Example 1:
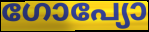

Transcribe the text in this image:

ഗോപ്യോ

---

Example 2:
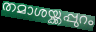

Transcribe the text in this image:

തമാശയ്ക്കപ്പുറം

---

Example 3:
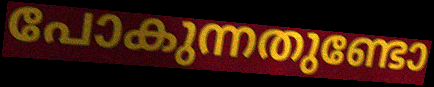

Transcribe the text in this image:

പോകുന്നതുണ്ടോ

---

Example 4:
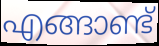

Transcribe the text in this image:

എങ്ങാണ്ട്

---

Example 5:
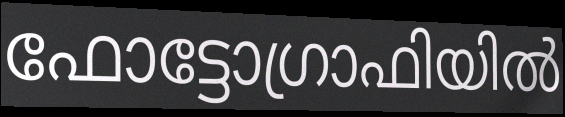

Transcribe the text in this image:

ഫോട്ടോഗ്രാഫിയിൽ